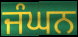
ਜੰਘਨ